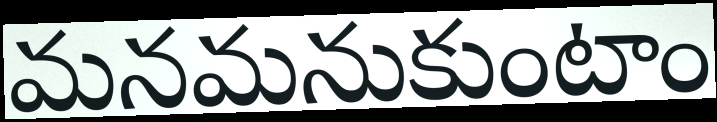
మనమనుకుంటాం